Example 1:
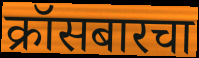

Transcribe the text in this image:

क्रॉसबारचा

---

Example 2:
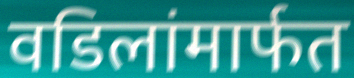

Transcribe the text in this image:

वडिलांमार्फत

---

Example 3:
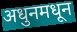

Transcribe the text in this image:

अधुनमधून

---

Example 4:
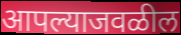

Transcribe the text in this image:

आपल्याजवळील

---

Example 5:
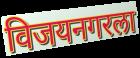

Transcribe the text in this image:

विजयनगरला